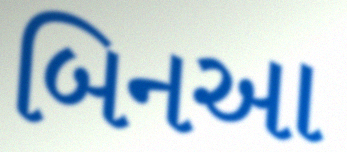
બિનઆ